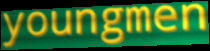
youngmen